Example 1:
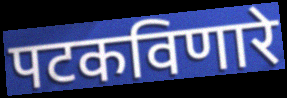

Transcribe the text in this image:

पटकविणारे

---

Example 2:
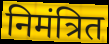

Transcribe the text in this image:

निमंत्रित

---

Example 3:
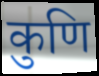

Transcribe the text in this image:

कुणि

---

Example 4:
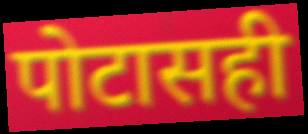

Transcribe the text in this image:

पोटासही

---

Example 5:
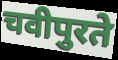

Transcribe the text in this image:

चवीपुरते